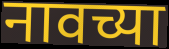
नावच्या